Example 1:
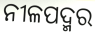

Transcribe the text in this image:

ନୀଳପଦ୍ମର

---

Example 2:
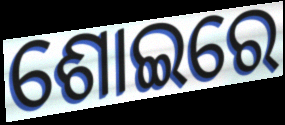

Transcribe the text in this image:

ଶୋଇରେ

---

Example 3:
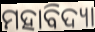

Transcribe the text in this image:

ମହାବିଦ୍ୟା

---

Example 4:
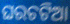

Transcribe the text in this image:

ଘରଚଟିଆ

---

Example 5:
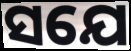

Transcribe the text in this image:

ସଯେ